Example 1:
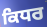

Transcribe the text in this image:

ਕਿਧਰ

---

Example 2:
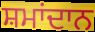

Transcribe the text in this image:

ਸ਼ਮਾਂਦਾਨ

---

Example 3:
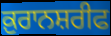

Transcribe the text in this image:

ਕ਼ੁਰਾਨਸ਼ਰੀਫ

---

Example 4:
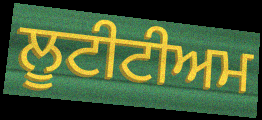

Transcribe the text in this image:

ਲੂਟੀਟੀਅਮ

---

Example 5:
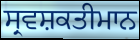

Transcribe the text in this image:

ਸ੍ਰਵਸ਼ਕਤੀਮਾਨ